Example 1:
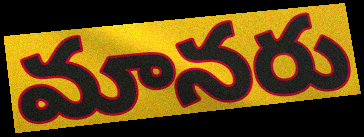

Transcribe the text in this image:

మానరు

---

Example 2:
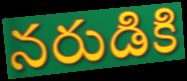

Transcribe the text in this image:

నరుడికి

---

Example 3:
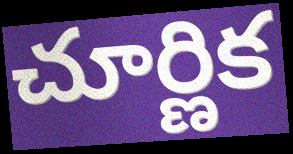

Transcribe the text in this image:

చూర్ణిక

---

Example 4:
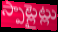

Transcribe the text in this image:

స్పాట్లైట్లు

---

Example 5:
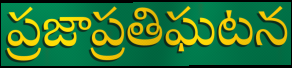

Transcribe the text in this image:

ప్రజాప్రతిఘటన